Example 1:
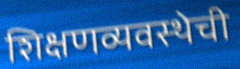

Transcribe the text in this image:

शिक्षणव्यवस्थेची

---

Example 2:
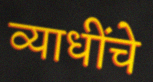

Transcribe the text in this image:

व्याधींचे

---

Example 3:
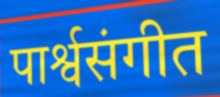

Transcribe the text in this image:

पार्श्वसंगीत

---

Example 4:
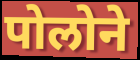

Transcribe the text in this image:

पोलोने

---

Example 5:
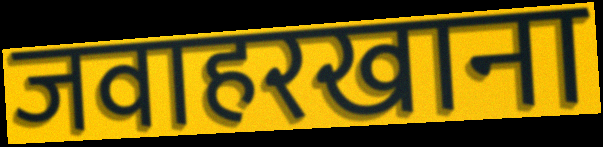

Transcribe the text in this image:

जवाहरखाना